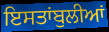
ਇਸਤਾਂਬੁਲੀਆਂ